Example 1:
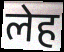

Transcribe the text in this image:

लेह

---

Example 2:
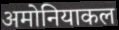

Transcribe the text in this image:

अमोनियाकल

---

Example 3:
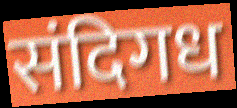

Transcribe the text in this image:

संदिगध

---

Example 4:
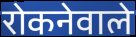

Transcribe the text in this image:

रोकनेवाले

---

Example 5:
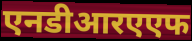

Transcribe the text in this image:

एनडीआरएएफ